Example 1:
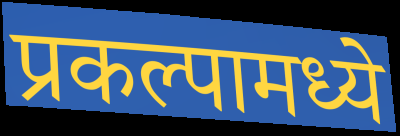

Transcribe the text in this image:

प्रकल्पामध्ये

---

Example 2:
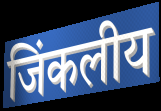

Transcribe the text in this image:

जिंकलीय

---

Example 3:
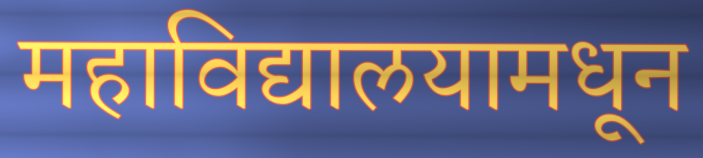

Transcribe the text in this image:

महाविद्यालयामधून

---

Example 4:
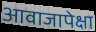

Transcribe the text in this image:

आवाजापेक्षा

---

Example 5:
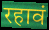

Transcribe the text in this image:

रहावं